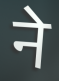
ने